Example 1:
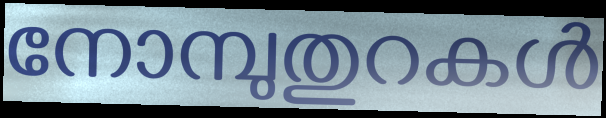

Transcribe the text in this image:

നോമ്പുതുറകൾ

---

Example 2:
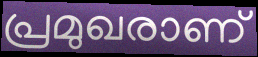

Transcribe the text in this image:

പ്രമുഖരാണ്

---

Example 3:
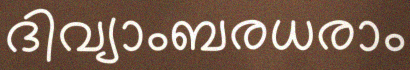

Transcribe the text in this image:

ദിവ്യാംബരധരാം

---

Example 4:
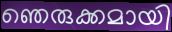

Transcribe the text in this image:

ഞെരുക്കമായി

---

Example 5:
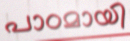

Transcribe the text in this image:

പാഠമായി